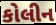
કોલીન